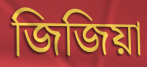
জিজিয়া